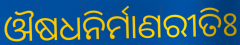
ଔଷଧନିର୍ମାଣରୀତିଃ